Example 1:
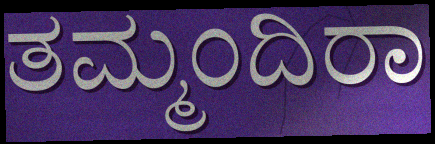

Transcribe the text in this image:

ತಮ್ಮಂದಿರಾ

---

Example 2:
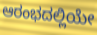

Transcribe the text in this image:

ಆರಂಭದಲ್ಲಿಯೇ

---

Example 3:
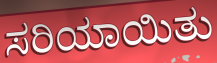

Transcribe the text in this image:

ಸರಿಯಾಯಿತು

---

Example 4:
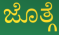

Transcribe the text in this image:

ಜೊತ್ಗೆ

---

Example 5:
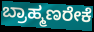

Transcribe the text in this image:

ಬ್ರಾಹ್ಮಣರೇಕೆ